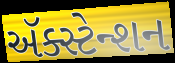
ઍક્સ્ટેન્શન